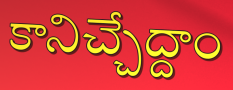
కానిచ్చేద్దాం